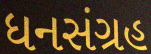
ધનસંગ્રહ